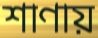
শাণায়